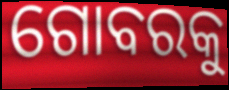
ଗୋବରକୁ